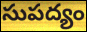
సుపద్యం